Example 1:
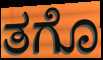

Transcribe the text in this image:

ತಗೊ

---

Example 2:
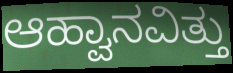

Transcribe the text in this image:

ಆಹ್ವಾನವಿತ್ತು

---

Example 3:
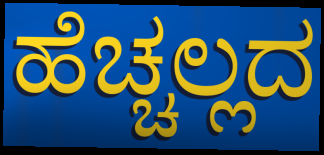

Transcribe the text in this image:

ಹೆಚ್ಚಲ್ಲದ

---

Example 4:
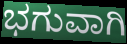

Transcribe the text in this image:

ಭಗುವಾಗಿ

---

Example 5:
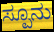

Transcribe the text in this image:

ಸ್ಪೂನು